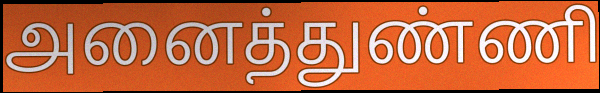
அனைத்துண்ணி